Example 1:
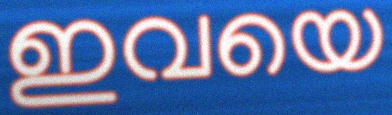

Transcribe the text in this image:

ഇവയെ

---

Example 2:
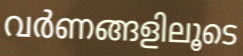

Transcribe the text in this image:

വർണങ്ങളിലൂടെ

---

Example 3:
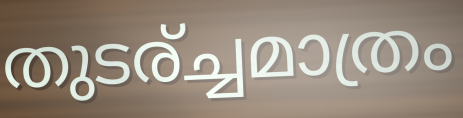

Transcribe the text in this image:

തുടര്ച്ചമാത്രം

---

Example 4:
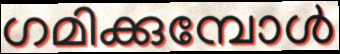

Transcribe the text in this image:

ഗമിക്കുമ്പോൾ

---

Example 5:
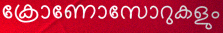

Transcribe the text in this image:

ക്രോണോസോറുകളും